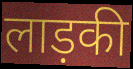
लाड़की